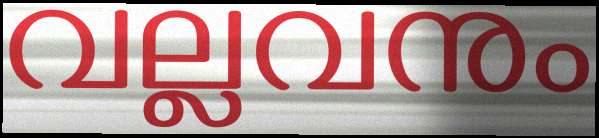
വല്ലവനും